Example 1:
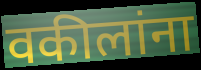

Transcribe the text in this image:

वकीलांना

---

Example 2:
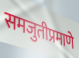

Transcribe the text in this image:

समजुतीप्रमाणे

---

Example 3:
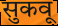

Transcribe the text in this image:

सुकवू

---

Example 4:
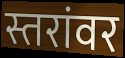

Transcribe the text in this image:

स्तरांवर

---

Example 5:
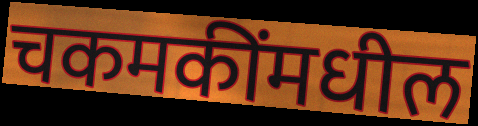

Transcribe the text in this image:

चकमकींमधील